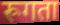
रूगता